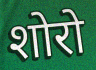
शोरो